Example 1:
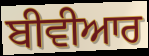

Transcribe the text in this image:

ਬੀਵੀਆਰ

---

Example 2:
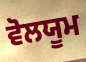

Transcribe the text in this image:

ਵੋਲਯੂਮ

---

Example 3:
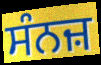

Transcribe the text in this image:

ਸੰਨਜ਼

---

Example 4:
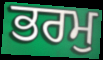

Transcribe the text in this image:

ਭਰਮੁ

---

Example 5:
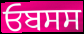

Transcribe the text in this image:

ਓਬਸਸ